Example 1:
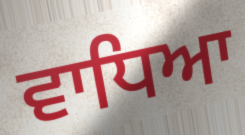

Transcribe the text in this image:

ਵਾਧਿਆ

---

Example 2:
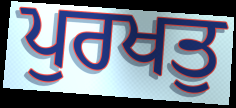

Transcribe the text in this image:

ਪੁਰਖਤੁ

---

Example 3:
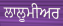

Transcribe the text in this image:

ਲਾਲੂਮੀਅਰ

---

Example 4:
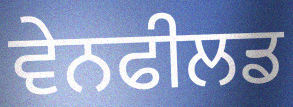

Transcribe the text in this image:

ਵੇਨਫੀਲਡ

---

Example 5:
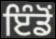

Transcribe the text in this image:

ਇੰਡੋਂ